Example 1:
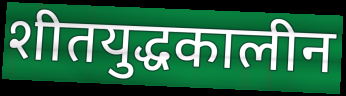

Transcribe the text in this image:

शीतयुद्धकालीन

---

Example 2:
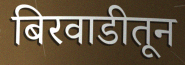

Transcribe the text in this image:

बिरवाडीतून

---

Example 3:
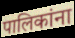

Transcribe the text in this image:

पालिकांना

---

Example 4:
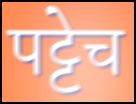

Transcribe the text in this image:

पट्टेच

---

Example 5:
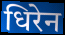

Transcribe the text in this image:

धिरेन